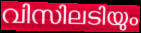
വിസിലടിയും